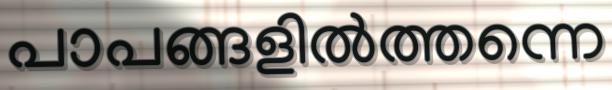
പാപങ്ങളിൽത്തന്നെ